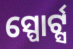
ସ୍ପୋର୍ଟ୍ସ